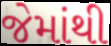
જેમાંથી